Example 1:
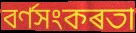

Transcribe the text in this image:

বৰ্ণসংকৰতা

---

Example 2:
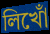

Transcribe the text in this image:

লিখোঁ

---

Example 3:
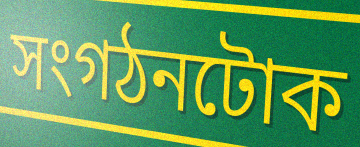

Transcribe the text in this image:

সংগঠনটোক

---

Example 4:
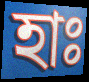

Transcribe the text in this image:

হাঃ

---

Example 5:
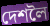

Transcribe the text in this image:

দেশলৈ